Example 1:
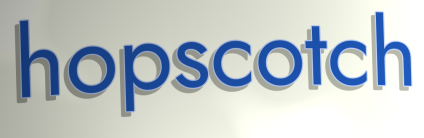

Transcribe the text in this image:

hopscotch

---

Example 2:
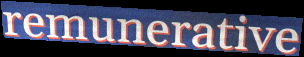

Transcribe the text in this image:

remunerative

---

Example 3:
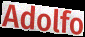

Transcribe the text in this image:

Adolfo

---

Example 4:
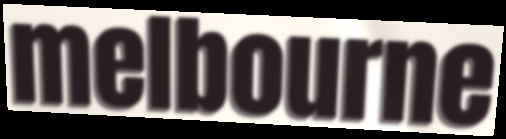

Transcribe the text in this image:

melbourne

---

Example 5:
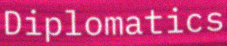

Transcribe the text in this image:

Diplomatics